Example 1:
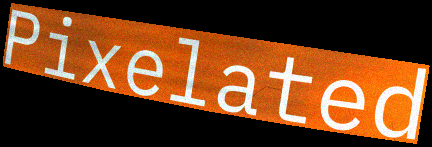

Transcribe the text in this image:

Pixelated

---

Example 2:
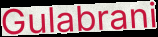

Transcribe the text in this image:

Gulabrani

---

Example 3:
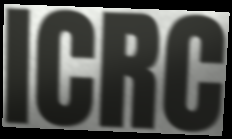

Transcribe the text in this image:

ICRC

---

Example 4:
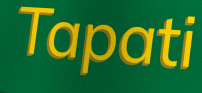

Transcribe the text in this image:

Tapati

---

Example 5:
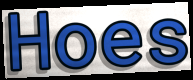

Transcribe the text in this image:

Hoes